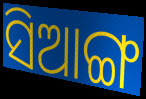
ସିଆଙ୍ଗ